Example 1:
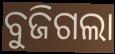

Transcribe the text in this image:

ବୁଜିଗଲା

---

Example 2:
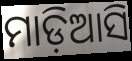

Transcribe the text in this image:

ମାଡ଼ିଆସି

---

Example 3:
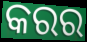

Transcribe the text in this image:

କରର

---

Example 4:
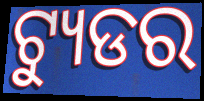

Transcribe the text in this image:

ଟ୍ୟୁଡର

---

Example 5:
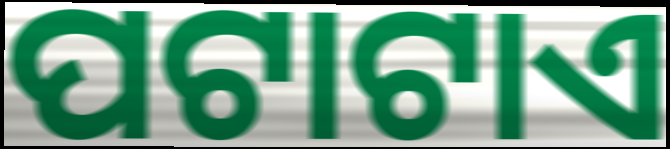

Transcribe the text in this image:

ପଟାଟାଏ